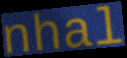
nhal